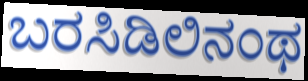
ಬರಸಿಡಿಲಿನಂಥ